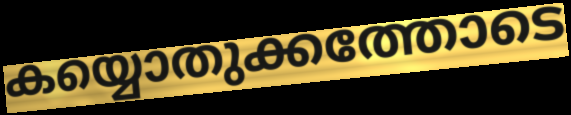
കയ്യൊതുക്കത്തോടെ